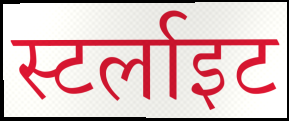
स्टर्लाइट